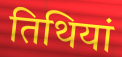
तिथियां